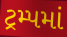
ટ્રમ્પમાં